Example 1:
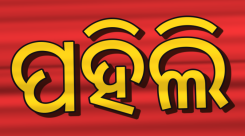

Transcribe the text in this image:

ପହିଲି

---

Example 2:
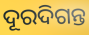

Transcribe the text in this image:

ଦୂରଦିଗନ୍ତ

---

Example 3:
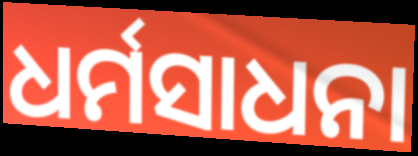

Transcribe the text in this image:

ଧର୍ମସାଧନା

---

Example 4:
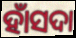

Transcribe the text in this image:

ହାଁସଦା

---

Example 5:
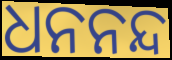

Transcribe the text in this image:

ଧନନନ୍ଦ